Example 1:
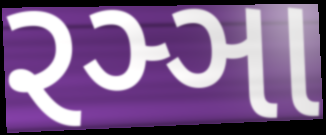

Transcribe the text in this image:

રઞ્ઞા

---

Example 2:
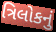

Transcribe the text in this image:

ત્રિલોકનું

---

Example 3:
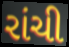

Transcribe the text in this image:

રાંચી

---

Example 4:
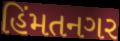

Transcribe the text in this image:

હિંમતનગર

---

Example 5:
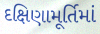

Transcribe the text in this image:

દક્ષિણામૂર્તિમાં